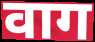
वाग